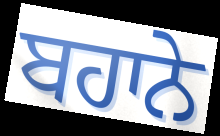
ਬਹਾਨੇ